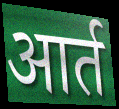
आर्त